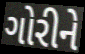
ગોરીને